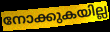
നോക്കുകയില്ല